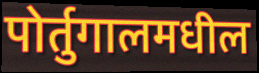
पोर्तुगालमधील